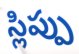
స్లిప్పు